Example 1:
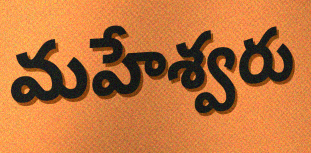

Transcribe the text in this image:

మహేశ్వరు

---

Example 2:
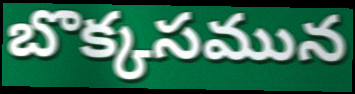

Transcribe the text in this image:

బొక్కసమున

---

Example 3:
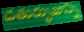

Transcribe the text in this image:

చతుర్భుజాన్ని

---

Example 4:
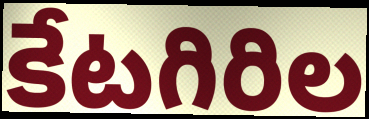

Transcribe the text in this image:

కేటగిరిల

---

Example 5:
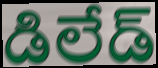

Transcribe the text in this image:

డిలేడ్